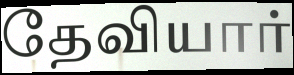
தேவியார்